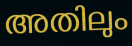
അതിലും